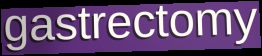
gastrectomy